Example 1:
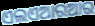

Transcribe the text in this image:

ଏଲଏଆରଆର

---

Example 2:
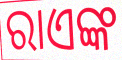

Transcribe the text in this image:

ରାଏଙ୍କ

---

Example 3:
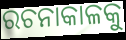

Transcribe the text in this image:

ରଚନାକାଳକୁ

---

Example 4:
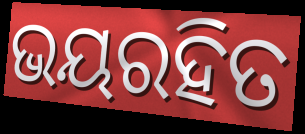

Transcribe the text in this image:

ଭୟରହିତ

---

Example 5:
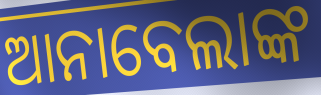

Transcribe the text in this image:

ଆନାବେଲାଙ୍କ